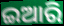
ଇଆରି